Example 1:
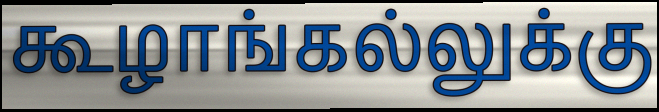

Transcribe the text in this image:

கூழாங்கல்லுக்கு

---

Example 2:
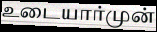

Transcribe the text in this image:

உடையார்முன்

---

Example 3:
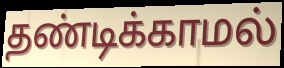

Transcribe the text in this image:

தண்டிக்காமல்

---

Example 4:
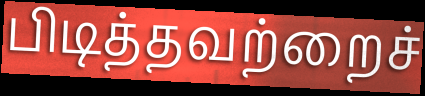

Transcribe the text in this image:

பிடித்தவற்றைச்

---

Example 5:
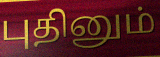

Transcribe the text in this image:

புதினும்